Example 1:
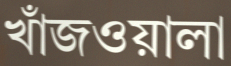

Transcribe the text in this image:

খাঁজওয়ালা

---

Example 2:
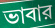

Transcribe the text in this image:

ভাবার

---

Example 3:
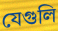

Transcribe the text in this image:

যেগুলি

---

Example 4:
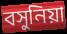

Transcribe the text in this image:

বসুনিয়া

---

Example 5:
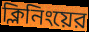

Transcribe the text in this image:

ক্লিনিংয়ের